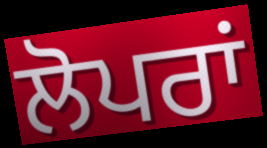
ਲੋਪਰਾਂ